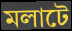
মলাটে